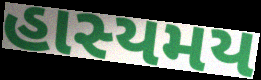
હાસ્યમય